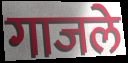
गाजले